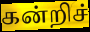
கன்றிச்